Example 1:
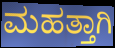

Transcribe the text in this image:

ಮಹತ್ತಾಗಿ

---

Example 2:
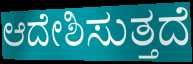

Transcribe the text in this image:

ಆದೇಶಿಸುತ್ತದೆ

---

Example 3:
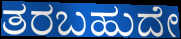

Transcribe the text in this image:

ತರಬಹುದೇ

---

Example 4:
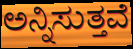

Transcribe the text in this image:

ಅನ್ನಿಸುತ್ತವೆ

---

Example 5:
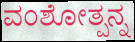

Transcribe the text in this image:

ವಂಶೋತ್ಪನ್ನ